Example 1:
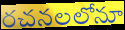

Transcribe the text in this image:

రచనలలోనూ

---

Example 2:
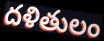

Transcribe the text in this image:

దళితులం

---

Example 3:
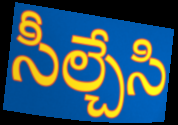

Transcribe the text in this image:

సీల్చేసి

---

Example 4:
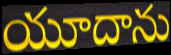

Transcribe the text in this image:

యూదాను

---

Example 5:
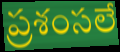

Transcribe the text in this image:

ప్రశంసలే